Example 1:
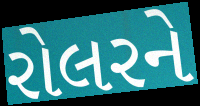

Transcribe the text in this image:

રોલરને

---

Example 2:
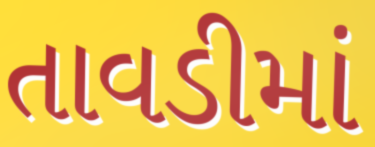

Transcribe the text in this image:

તાવડીમાં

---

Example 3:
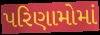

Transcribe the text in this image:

પરિણામોમાં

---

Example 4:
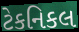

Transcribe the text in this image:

ટેકનિકલ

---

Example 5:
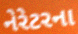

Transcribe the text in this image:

નેરેટરના